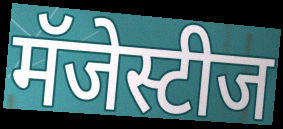
मॅजेस्टीज